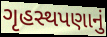
ગૃહસ્થપણાનું